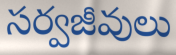
సర్వజీవులు